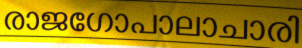
രാജഗോപാലാചാരി